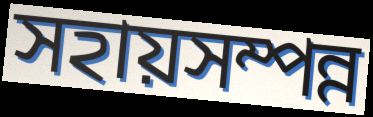
সহায়সম্পন্ন